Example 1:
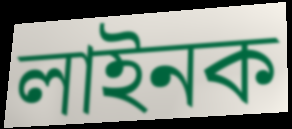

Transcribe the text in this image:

লাইনক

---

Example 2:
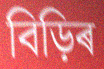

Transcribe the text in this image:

বিড়িৰ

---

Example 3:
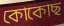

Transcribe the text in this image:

কোকোছ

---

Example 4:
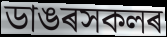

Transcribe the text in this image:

ডাঙৰসকলৰ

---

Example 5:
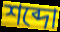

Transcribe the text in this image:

শব্দো